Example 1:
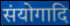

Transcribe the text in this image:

संयोगादि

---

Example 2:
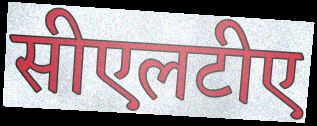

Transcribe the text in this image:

सीएलटीए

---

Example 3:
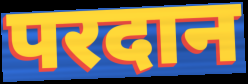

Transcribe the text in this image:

परदान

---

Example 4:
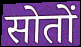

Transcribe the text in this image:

सोतों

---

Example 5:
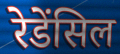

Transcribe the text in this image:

रेडेंसिल